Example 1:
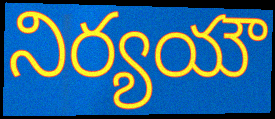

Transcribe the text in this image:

నిర్యయౌ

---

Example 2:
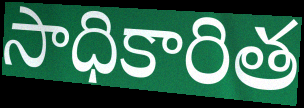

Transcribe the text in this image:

సాధికారిత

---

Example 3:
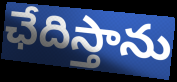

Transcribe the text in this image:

ఛేదిస్తాను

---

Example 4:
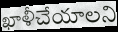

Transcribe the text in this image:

ఖాళీచేయాలని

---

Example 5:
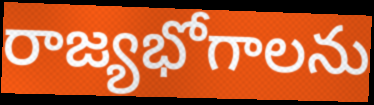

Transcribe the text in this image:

రాజ్యభోగాలను